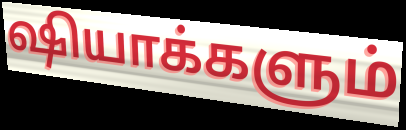
ஷியாக்களும்